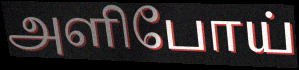
அளிபோய்